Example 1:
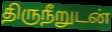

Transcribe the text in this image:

திருநீறுடன்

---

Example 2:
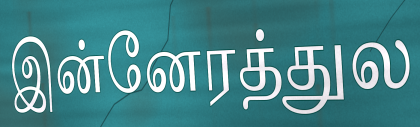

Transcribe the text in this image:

இன்னேரத்துல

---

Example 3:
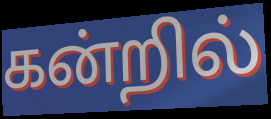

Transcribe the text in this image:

கன்றில்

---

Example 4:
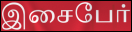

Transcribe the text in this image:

இசைபேர்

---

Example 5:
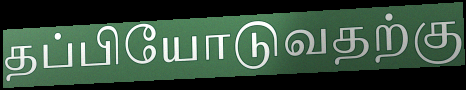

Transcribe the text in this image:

தப்பியோடுவதற்கு